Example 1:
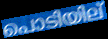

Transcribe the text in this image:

പൊടിയില്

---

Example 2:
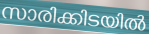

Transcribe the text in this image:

സാരിക്കിടയിൽ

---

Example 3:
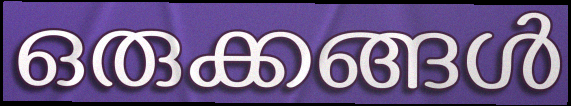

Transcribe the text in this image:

ഒരുക്കങ്ങൾ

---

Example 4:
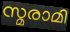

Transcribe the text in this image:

സ്മരാമി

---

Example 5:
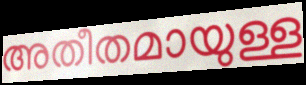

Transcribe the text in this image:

അതീതമായുള്ള